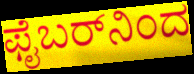
ಫೈಬರ್‌ನಿಂದ